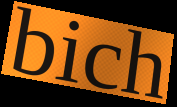
bich